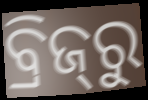
ବ୍ରିଜ୍‌ରୁ